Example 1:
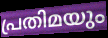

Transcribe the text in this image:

പ്രതിമയും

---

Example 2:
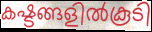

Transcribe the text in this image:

കഷ്ടങ്ങളിൽകൂടി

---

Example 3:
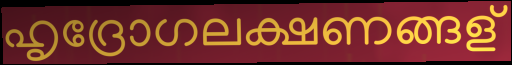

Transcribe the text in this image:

ഹൃദ്രോഗലക്ഷണങ്ങള്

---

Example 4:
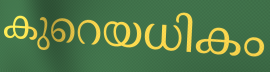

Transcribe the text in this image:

കുറെയധികം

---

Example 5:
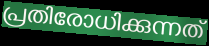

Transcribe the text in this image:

പ്രതിരോധിക്കുന്നത്